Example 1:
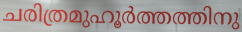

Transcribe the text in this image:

ചരിത്രമുഹൂർത്തത്തിനു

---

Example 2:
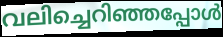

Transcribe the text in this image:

വലിച്ചെറിഞ്ഞപ്പോൾ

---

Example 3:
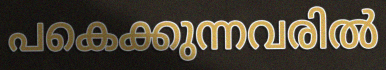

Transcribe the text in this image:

പകെക്കുന്നവരിൽ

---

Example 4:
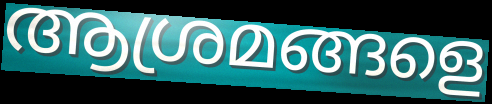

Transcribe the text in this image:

ആശ്രമങ്ങളെ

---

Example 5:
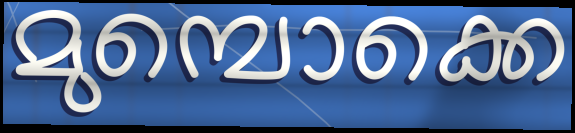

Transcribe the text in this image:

മുമ്പൊക്കെ